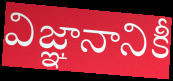
విజ్ఞానానికీ